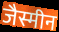
जैस्मीन